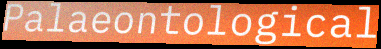
Palaeontological